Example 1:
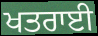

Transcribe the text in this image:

ਖਤਰਾਈ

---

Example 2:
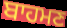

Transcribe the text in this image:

ਬਾਹਮਣ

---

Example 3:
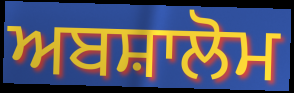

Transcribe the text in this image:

ਅਬਸ਼ਾਲੋਮ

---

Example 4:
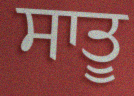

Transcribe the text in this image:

ਸਾਤੂ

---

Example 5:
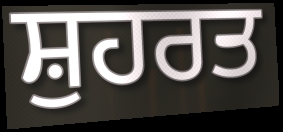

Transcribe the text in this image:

ਸ਼ੁਹਰਤ